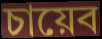
চায়েব